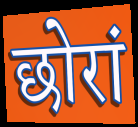
छोरां